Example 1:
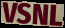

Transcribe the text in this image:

VSNL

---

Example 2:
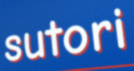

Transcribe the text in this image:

sutori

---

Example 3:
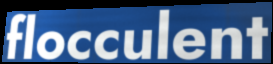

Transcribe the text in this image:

flocculent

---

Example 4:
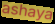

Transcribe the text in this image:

ashaya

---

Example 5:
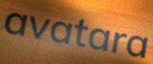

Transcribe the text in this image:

avatara